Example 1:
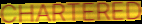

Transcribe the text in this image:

CHARTERED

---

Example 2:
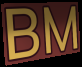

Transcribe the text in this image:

BM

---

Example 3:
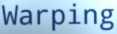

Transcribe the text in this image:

Warping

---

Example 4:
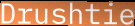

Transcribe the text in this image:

Drushtie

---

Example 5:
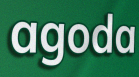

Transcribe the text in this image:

agoda